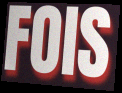
FOIS